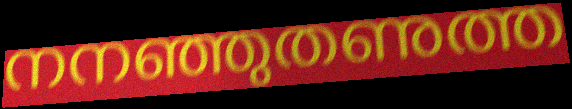
നനഞ്ഞുതണുത്ത